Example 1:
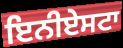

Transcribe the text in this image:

ਇਨੀਏਸਟਾ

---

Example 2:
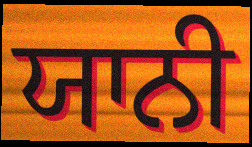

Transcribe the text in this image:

ਯਾਨੀ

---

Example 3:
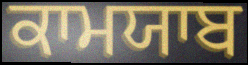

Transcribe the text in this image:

ਕਾਮਯਾਬ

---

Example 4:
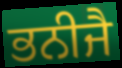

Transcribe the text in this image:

ਭਨੀਜੈ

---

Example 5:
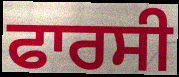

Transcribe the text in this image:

ਫਾਰਸੀ